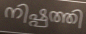
നിഷ്പത്തി